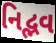
નિદ્ભવ